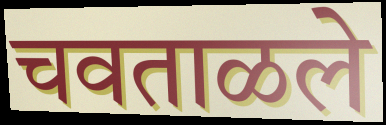
चवताळले